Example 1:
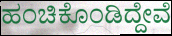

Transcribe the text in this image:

ಹಂಚಿಕೊಂಡಿದ್ದೇವೆ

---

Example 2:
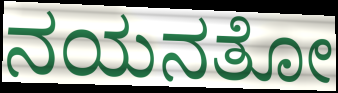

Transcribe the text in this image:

ನಯನತೋ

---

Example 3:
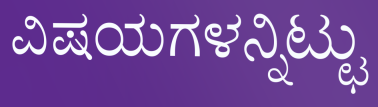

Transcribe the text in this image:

ವಿಷಯಗಳನ್ನಿಟ್ಟು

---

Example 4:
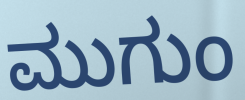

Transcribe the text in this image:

ಮುಗುಂ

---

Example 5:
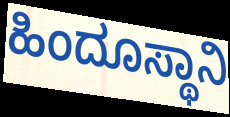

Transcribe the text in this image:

ಹಿಂದೂಸ್ಥಾನಿ